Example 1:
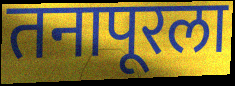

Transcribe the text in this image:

तनापूरला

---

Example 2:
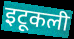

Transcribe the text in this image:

इटूकली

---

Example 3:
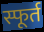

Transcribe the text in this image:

स्फूर्त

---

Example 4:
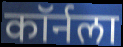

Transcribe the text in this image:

कॉर्नला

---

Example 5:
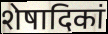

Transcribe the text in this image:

शेषादिकां